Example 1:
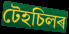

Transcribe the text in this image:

টেহচিলৰ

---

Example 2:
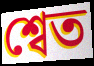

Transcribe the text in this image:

শ্বেত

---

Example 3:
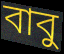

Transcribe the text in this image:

বাবু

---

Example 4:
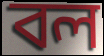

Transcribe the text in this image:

বল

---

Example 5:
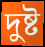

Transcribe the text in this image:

দুষ্ট